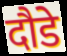
दौडे